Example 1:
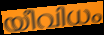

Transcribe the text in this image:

യീവിധം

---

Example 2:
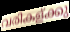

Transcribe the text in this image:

വരികള്ക്കു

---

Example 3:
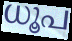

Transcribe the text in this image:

ധൂപ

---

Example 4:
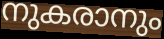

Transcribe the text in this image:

നുകരാനും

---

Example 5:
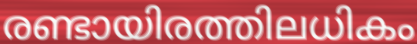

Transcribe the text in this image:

രണ്ടായിരത്തിലധികം